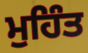
ਮੁਹਿੰਤ